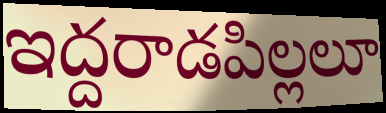
ఇద్దరాడపిల్లలూ